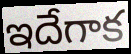
ఇదేగాక